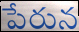
పేరున